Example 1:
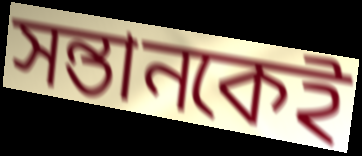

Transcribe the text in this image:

সন্তানকেই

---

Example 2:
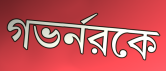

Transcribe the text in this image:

গভর্নরকে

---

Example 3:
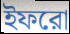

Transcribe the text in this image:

ইফরো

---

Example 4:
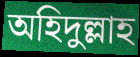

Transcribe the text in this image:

অহিদুল্লাহ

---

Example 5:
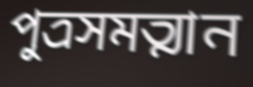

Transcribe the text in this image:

পুত্রসমত্মান